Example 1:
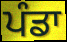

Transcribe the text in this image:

ਪੰਡਾ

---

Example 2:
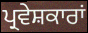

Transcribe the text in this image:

ਪ੍ਰਵੇਸ਼ਕਾਰਾਂ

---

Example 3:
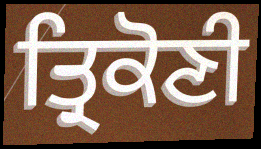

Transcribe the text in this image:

ਤ੍ਰਿਕੋਣੀ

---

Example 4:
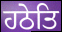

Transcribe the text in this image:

ਹਠੇਤਿ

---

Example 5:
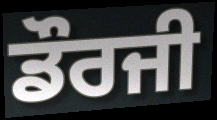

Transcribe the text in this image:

ਡੌਰਜੀ